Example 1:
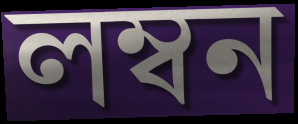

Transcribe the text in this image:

লম্বন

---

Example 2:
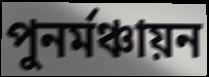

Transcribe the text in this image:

পুনর্মঞ্চায়ন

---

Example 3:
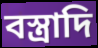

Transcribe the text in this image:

বস্ত্রাদি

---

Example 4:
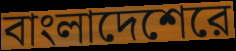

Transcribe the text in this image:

বাংলাদেশেরে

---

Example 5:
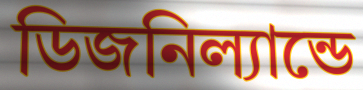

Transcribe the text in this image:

ডিজনিল্যান্ডে